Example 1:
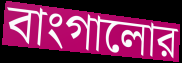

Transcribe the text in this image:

বাংগালোর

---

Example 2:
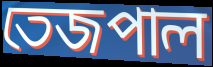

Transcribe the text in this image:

তেজপাল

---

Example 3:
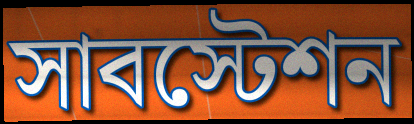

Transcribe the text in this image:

সাবস্টেশন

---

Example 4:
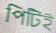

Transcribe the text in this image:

পিটিই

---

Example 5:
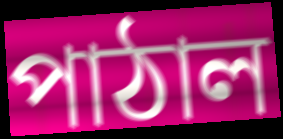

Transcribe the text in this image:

পাঠাল